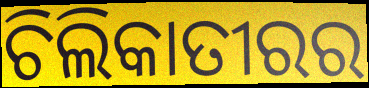
ଚିଲିକାତୀରର